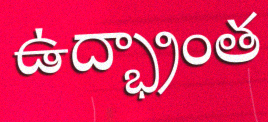
ఉద్భ్రాంత